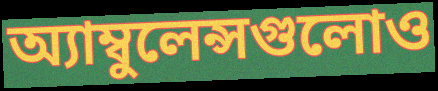
অ্যাম্বুলেন্সগুলোও